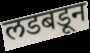
लडबडून